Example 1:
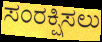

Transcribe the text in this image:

ಸಂರಕ್ಷಿಸಲು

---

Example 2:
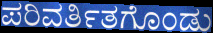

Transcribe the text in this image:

ಪರಿವರ್ತಿತಗೊಂಡು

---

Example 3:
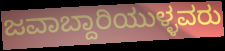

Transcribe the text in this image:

ಜವಾಬ್ದಾರಿಯುಳ್ಳವರು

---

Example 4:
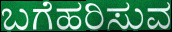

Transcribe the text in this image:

ಬಗೆಹರಿಸುವ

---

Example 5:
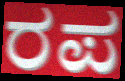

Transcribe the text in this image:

ರಪ